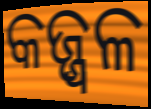
କଜ୍ଜ୍ୱଳ